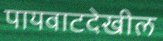
पायवाटदेखील